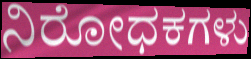
ನಿರೋಧಕಗಳು